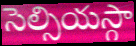
సెల్సియస్గా